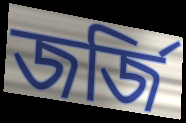
জর্জি